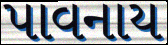
પાવનાય